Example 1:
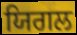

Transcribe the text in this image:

ਯਿਗਲ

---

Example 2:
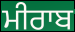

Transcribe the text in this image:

ਮੀਰਾਬ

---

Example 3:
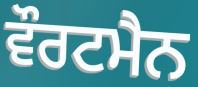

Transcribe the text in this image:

ਵੌਰਟਮੈਨ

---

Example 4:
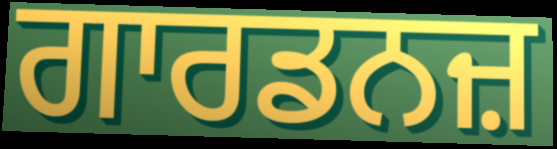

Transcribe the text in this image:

ਗਾਰਡਨਜ਼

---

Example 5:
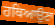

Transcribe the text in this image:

ਹਥਿਆਉਣਾ